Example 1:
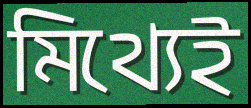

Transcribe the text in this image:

মিথ্যেই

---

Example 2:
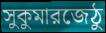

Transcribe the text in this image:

সুকুমারজেঠু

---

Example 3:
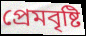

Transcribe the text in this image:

প্রেমবৃষ্টি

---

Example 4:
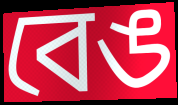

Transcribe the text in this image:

বেঙ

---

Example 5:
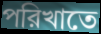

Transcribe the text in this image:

পরিখাতে